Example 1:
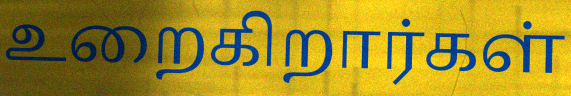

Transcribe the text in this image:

உறைகிறார்கள்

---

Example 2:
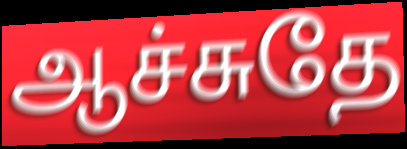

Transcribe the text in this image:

ஆச்சுதே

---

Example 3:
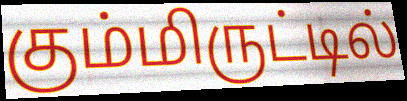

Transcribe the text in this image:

கும்மிருட்டில்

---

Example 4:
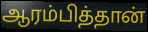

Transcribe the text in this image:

ஆரம்பித்தான்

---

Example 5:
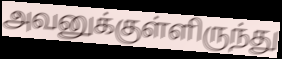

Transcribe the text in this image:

அவனுக்குள்ளிருந்து